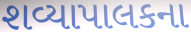
શવ્યાપાલકના